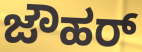
ಜೌಹರ್